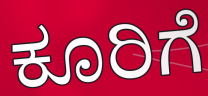
ಕೂರಿಗೆ